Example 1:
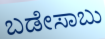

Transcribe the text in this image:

ಬಡೇಸಾಬು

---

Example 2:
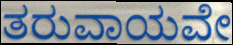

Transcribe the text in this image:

ತರುವಾಯವೇ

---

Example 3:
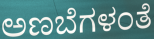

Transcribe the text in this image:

ಅಣಬೆಗಳಂತೆ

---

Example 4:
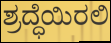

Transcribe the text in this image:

ಶ್ರದ್ಧೆಯಿರಲಿ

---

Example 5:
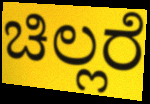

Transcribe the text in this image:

ಚಿಲ್ಲರೆ